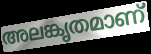
അലങ്കൃതമാണ്